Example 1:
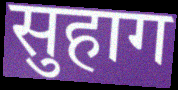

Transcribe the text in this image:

सुहाग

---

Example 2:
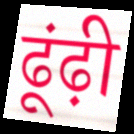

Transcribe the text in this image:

ढूंढ़ी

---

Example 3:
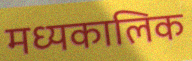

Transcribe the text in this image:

मध्यकालिक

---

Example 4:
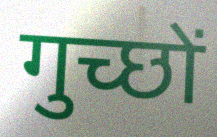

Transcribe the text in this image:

गुच्छों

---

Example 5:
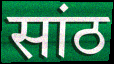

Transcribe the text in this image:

सांठ